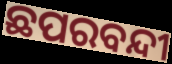
ଛପରବନ୍ଦୀ